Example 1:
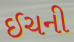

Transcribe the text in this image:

ઈચની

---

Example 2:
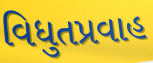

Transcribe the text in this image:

વિધુતપ્રવાહ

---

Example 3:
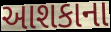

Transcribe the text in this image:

આશકાના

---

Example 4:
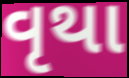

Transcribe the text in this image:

વૃથા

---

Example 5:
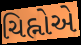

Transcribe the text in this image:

ચિહ્નોએ